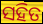
ସହିତ